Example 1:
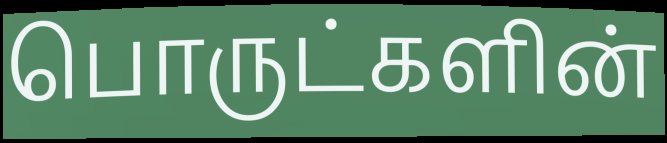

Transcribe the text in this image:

பொருட்களின்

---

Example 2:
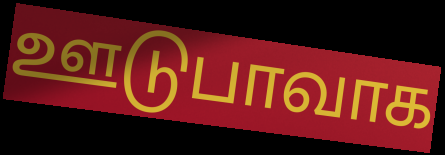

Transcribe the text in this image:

ஊடுபாவாக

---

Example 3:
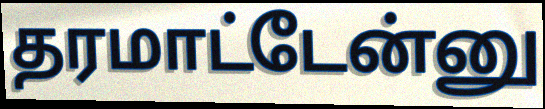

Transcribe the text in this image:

தரமாட்டேன்னு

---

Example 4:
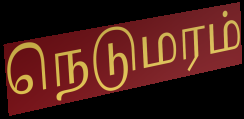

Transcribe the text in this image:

நெடுமரம்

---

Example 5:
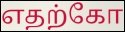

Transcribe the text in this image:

எதற்கோ